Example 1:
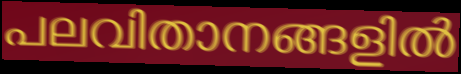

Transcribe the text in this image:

പലവിതാനങ്ങളിൽ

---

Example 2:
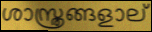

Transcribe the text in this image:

ശാസ്ത്രങ്ങളാല്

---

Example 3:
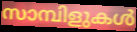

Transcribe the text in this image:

സാമ്പിളുകൾ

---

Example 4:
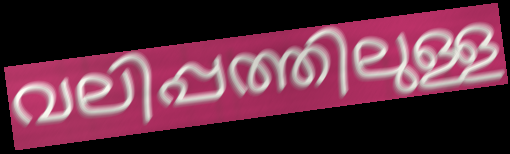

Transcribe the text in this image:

വലിപ്പത്തിലുള്ള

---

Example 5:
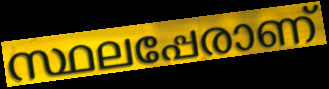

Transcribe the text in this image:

സ്ഥലപ്പേരാണ്